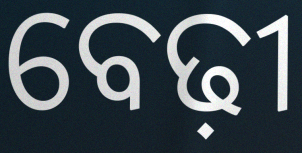
ବେଢ଼ୀ